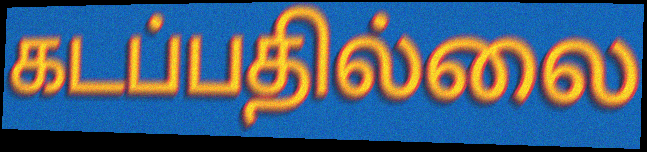
கடப்பதில்லை